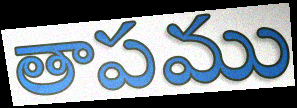
తాపము